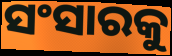
ସଂସାରକୁ